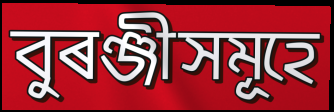
বুৰঞ্জীসমূহে